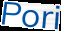
Pori